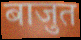
बाजुत